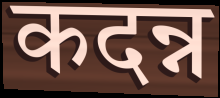
कदन्न